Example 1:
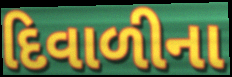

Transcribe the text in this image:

દિવાળીના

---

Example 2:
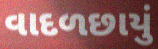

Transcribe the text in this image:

વાદળછાયું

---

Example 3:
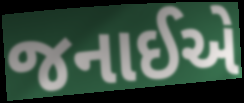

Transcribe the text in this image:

જનાઈએ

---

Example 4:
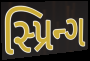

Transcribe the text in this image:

સ્પ્રિન્ગ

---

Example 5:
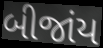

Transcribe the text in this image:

બીજાંય